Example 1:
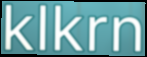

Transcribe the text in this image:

klkrn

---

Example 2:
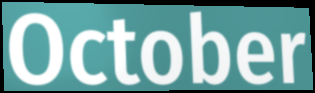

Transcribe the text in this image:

October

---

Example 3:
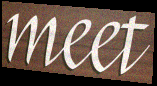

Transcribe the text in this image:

meet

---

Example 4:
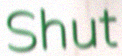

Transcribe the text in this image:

Shut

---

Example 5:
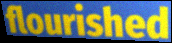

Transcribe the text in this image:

flourished